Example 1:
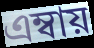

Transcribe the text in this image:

এম্বায়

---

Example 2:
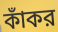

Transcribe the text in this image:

কাঁকর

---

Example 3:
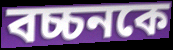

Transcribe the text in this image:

বচ্চনকে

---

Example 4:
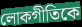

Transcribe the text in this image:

লোকগীতিকে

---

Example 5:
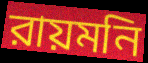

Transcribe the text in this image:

রায়মনি